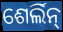
ଶେର୍ଲିନ୍